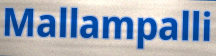
Mallampalli